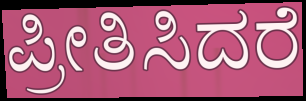
ಪ್ರೀತಿಸಿದರೆ